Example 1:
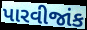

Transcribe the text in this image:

પારવીજાંક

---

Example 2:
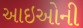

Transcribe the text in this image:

આઇઓની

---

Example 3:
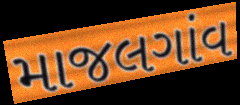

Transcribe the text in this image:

માજલગાંવ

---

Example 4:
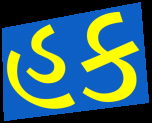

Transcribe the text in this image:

હક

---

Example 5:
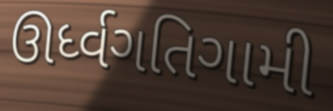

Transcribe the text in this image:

ઊર્ધ્વગતિગામી